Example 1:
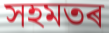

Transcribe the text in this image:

সহমতৰ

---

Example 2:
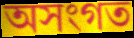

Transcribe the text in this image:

অসংগত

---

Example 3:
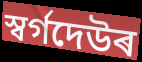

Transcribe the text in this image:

স্বৰ্গদেউৰ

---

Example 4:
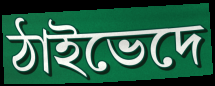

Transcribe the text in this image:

ঠাইভেদে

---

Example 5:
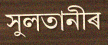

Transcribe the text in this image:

সুলতানীৰ